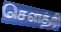
சௌத்ரி